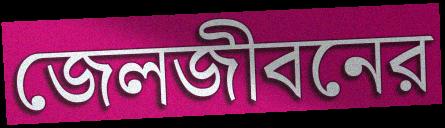
জেলজীবনের